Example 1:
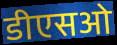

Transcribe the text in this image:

डीएसओ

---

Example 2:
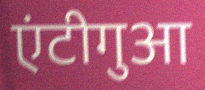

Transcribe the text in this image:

एंटीगुआ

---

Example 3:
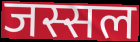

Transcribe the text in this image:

जस्सल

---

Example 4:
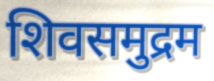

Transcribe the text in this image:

शिवसमुद्रम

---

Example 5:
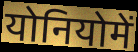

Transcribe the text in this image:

योनियोमें